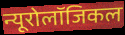
न्यूरोलॉजिकल